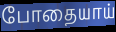
போதையாய்